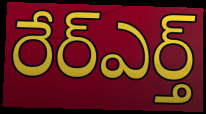
రేర్ఎర్త్